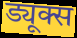
ड्यूक्स